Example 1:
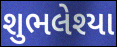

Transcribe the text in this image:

શુભલેશ્યા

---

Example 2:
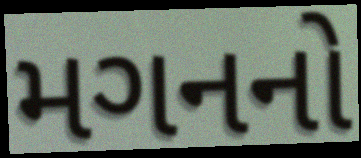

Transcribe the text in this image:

મગનનો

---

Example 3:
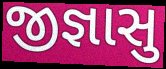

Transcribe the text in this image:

જીજ્ઞાસુ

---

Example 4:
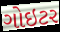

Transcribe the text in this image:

ગોઇટર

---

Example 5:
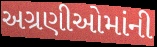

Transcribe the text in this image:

અગ્રણીઓમાંની